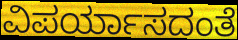
ವಿಪರ್ಯಾಸದಂತೆ